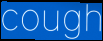
cough